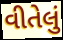
વીતેલું